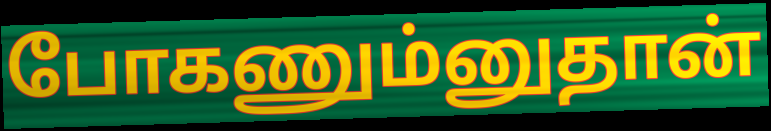
போகணும்னுதான்